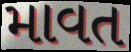
માવત